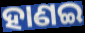
ହାଣଇ